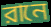
রানে